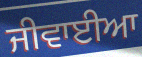
ਜੀਵਾਈਆ